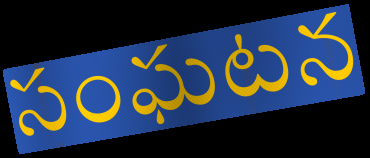
సంఘటన